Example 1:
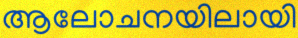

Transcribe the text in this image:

ആലോചനയിലായി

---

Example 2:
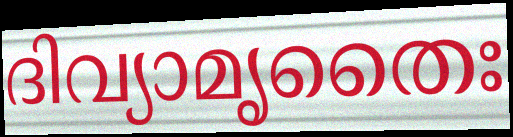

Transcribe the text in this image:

ദിവ്യാമൃതൈഃ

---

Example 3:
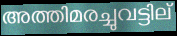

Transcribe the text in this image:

അത്തിമരച്ചുവട്ടില്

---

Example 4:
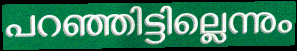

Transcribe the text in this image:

പറഞ്ഞിട്ടില്ലെന്നും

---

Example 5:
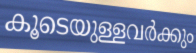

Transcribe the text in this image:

കൂടെയുള്ളവർക്കും